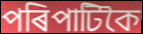
পৰিপাটিকৈ